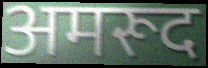
अमरूद